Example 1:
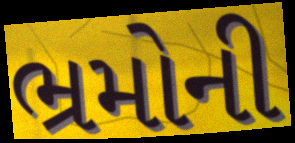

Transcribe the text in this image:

ભ્રમોની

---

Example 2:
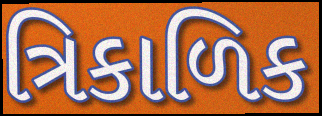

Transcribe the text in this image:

ત્રિકાળિક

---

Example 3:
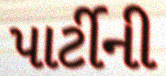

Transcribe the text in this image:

પાર્ટીની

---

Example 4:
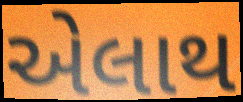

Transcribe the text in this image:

એલાથ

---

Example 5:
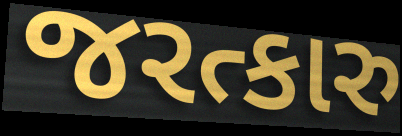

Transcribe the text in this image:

જરત્કારુ